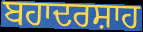
ਬਹਾਦਰਸ਼ਾਹ